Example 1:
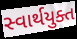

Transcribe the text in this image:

સ્વાર્થયુક્ત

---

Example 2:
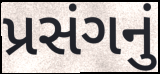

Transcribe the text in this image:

પ્રસંગનું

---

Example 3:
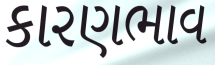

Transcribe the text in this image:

કારણભાવ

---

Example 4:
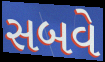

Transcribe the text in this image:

સબવે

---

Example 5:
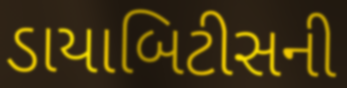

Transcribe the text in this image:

ડાયાબિટીસની